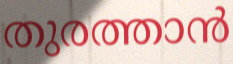
തുരത്താൻ